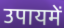
उपायमें